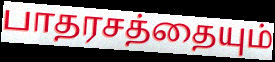
பாதரசத்தையும்